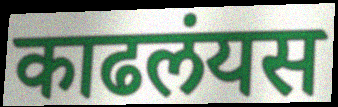
काढलंयस